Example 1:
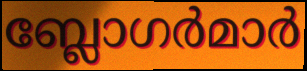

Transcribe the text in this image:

ബ്ലോഗർമാർ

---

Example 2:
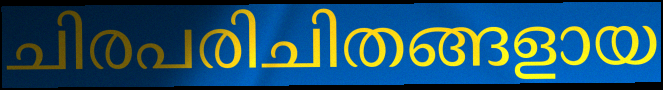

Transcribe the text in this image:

ചിരപരിചിതങ്ങളായ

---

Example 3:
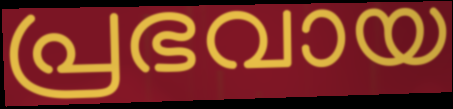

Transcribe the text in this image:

പ്രഭവായ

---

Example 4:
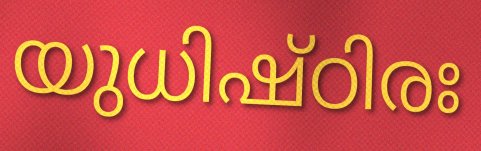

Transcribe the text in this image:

യുധിഷ്ഠിരഃ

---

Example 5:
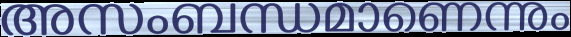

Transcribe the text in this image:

അസംബന്ധമാണെന്നും